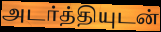
அடர்த்தியுடன்